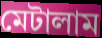
মেটালাম